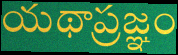
యథాప్రజ్ఞం